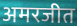
अमरजीत